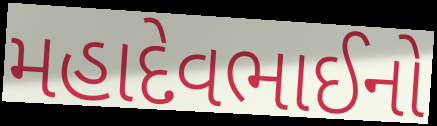
મહાદેવભાઈનો